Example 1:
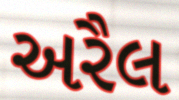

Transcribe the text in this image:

અરૈલ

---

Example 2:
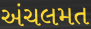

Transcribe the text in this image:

અંચલમત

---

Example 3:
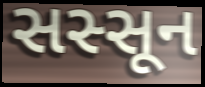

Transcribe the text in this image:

સસ્સૂન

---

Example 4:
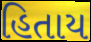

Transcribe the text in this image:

હિતાય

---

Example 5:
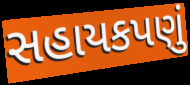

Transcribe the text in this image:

સહાયકપણું